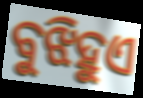
ବୁଝିହୁଏ